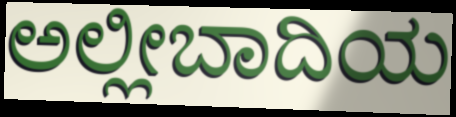
ಅಲ್ಲೀಬಾದಿಯ